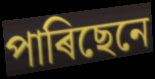
পাৰিছেনে